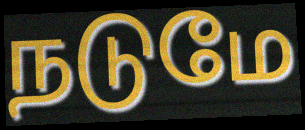
நடுமே